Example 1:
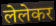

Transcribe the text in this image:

लेलेकर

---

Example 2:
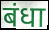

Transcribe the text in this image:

बंधा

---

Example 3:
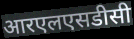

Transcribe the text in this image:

आरएलएसडीसी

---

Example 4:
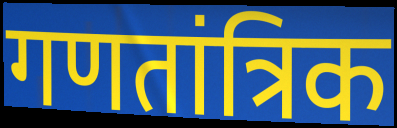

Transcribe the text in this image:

गणतांत्रिक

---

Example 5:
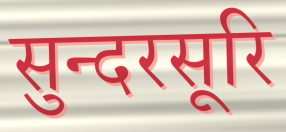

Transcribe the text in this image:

सुन्दरसूरि